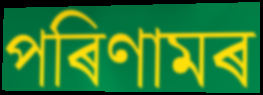
পৰিণামৰ